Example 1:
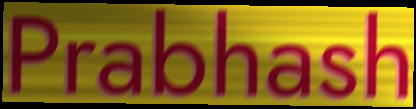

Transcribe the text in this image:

Prabhash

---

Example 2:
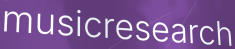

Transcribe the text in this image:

musicresearch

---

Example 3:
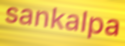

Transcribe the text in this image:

sankalpa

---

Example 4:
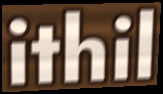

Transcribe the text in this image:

ithil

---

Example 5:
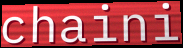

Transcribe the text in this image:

chaini